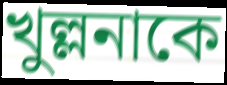
খুল্লনাকে